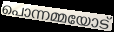
പൊന്നമ്മയോട്